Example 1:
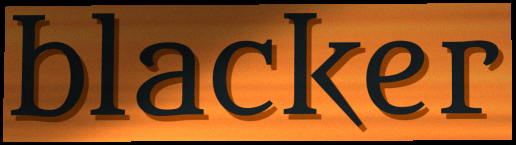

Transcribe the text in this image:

blacker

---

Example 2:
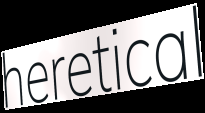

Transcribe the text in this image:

heretical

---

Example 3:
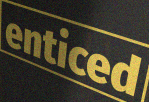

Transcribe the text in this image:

enticed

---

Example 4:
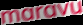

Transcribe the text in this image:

maravu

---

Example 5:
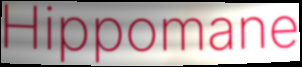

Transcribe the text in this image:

Hippomane